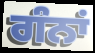
ਗੰਨਾਂ